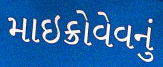
માઇક્રોવેવનું